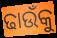
ଢାଉଁକୁ